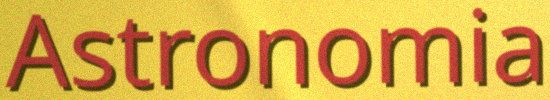
Astronomia